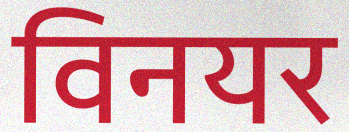
विनयर